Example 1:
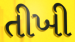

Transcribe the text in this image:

તીખી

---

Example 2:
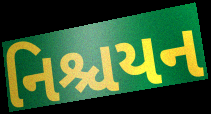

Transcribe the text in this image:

નિશ્ચયન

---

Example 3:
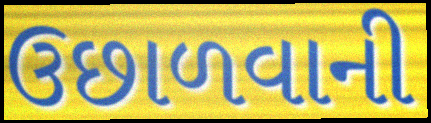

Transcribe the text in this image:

ઉછાળવાની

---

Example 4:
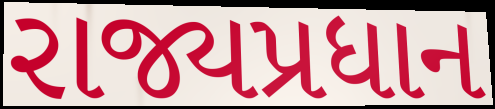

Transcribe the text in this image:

રાજ્યપ્રધાન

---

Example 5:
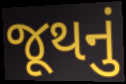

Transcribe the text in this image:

જૂથનું